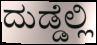
ದುಡ್ಡೆಲ್ಲಿ